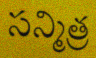
సన్మిత్ర